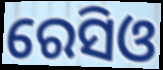
ରେସିଓ